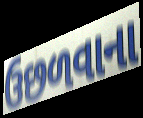
ઉછળવાના